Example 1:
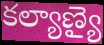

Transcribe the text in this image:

కల్యాణ్యై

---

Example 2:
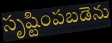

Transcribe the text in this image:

సృష్టింపబడెను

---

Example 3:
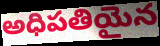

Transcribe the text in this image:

అధిపతియైన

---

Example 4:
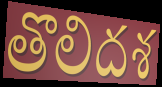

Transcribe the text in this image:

తొలిదశ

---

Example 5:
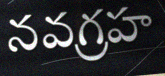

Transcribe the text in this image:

నవగ్రహ